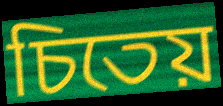
চিতেয়